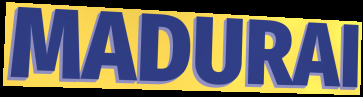
MADURAI